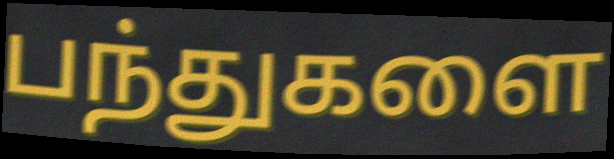
பந்துகளை